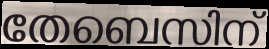
തേബെസിന്